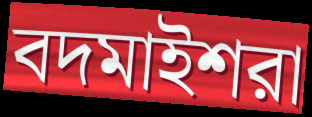
বদমাইশরা